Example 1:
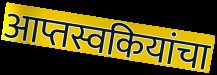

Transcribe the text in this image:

आप्तस्वकियांचा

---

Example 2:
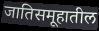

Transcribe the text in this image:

जातिसमूहातील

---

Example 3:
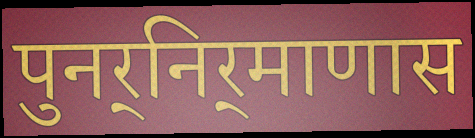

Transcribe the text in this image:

पुनर्निर्माणास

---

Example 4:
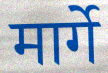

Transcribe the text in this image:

मार्गे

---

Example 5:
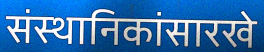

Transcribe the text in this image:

संस्थानिकांसारखे